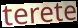
terete